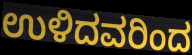
ಉಳಿದವರಿಂದ